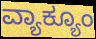
ವ್ಯಾಕ್ಯೂಂ